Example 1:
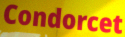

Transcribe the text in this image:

Condorcet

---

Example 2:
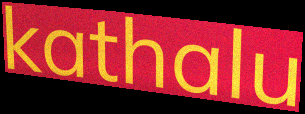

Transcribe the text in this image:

kathalu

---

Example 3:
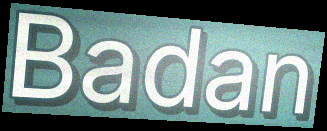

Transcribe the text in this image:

Badan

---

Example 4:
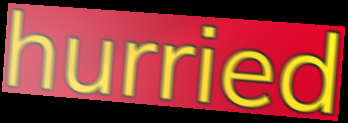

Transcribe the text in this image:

hurried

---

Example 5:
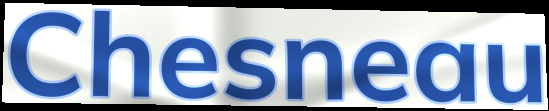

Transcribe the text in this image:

Chesneau